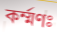
কর্ম্মণঃ